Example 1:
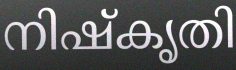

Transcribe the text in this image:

നിഷ്കൃതി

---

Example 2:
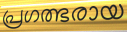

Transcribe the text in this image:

പ്രഗത്ഭരായ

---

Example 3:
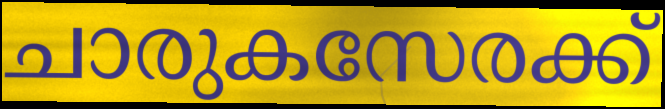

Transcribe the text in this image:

ചാരുകസേരക്ക്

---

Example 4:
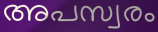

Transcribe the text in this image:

അപസ്വരം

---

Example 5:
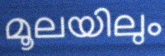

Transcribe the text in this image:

മൂലയിലും